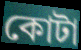
কোটা